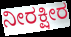
ನೀರಕ್ಷೀರ